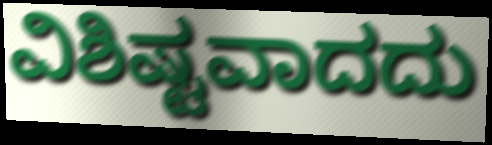
ವಿಶಿಷ್ಟವಾದದು